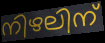
നിഴലിന്